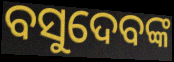
ବସୁଦେବଙ୍କ